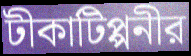
টীকাটিপ্পনীর